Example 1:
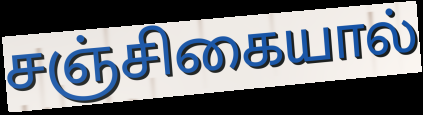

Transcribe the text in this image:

சஞ்சிகையால்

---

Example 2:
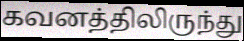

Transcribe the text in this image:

கவனத்திலிருந்து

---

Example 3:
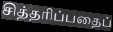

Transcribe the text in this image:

சித்தரிப்பதைப்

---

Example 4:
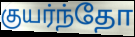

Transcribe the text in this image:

குயர்ந்தோ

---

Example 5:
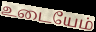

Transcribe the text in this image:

உடையேம்